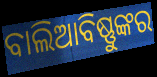
ବାଲିଆବିଷ୍ଣୁଙ୍କର